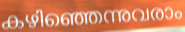
കഴിഞ്ഞെന്നുവരാം